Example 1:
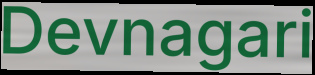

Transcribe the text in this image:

Devnagari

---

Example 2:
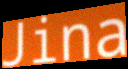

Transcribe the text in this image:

Jina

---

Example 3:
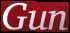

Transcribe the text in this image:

Gun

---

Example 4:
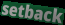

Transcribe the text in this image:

setback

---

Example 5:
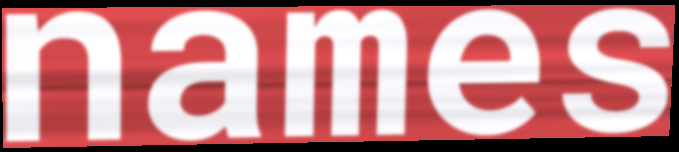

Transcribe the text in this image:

names